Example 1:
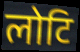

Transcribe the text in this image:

लोटि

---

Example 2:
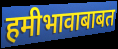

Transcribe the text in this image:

हमीभावाबाबत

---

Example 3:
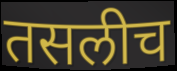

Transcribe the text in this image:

तसलीच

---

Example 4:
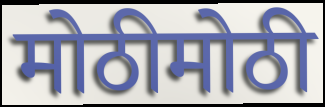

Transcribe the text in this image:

मोठीमोठी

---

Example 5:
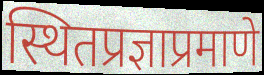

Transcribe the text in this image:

स्थितप्रज्ञाप्रमाणे